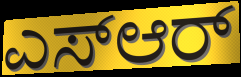
ಎಸ್ಆರ್